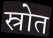
स्रोत